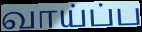
வாய்ப்ப